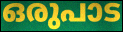
ഒരുപാട